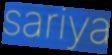
sariya